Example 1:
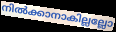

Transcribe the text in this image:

നിൽക്കാനാകില്ലല്ലോ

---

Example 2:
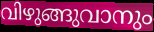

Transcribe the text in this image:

വിഴുങ്ങുവാനും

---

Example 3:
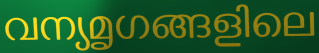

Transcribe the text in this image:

വന്യമൃഗങ്ങളിലെ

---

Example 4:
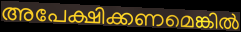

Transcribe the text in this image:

അപേക്ഷിക്കണമെങ്കിൽ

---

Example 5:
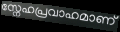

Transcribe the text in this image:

സ്നേഹപ്രവാഹമാണ്